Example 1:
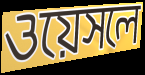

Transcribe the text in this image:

ওয়েসলে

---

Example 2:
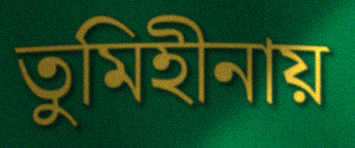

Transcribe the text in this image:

তুমিহীনায়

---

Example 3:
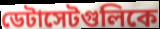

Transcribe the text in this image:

ডেটাসেটগুলিকে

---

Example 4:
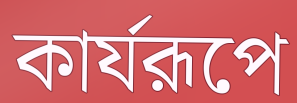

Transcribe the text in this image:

কার্যরূপে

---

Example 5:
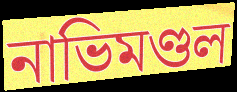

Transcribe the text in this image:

নাভিমণ্ডল